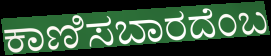
ಕಾಣಿಸಬಾರದೆಂಬ